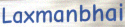
Laxmanbhai